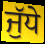
ਜੁੱਧੇ